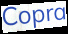
Copra